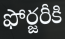
ఫోర్జరీకి